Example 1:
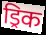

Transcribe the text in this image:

ड्रिक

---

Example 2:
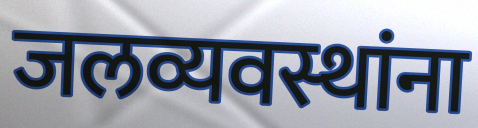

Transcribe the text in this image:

जलव्यवस्थांना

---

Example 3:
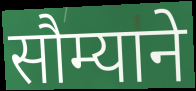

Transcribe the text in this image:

सौम्याने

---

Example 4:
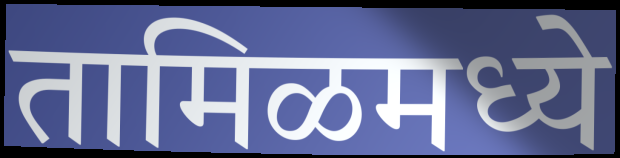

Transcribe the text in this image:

तामिळमध्ये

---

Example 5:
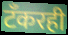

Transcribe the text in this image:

टँकरही